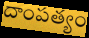
దాంపత్యం